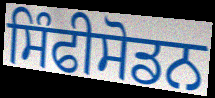
ਸਿੰਫੀਸੋਡਨ